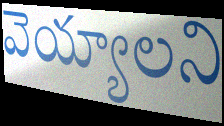
వెయ్యాలని